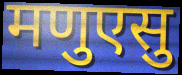
मणुएसु